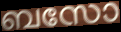
ബസോ